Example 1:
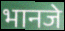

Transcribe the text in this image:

भानजे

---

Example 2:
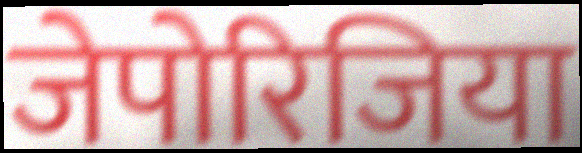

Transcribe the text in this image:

जेपोरिजिया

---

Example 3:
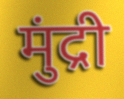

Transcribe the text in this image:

मुंद्री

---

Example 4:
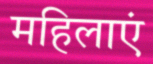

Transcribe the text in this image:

महिलाएं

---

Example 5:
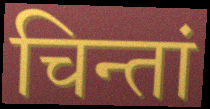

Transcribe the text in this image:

चिन्तां